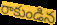
రాకుండిన